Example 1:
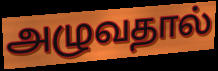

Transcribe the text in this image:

அழுவதால்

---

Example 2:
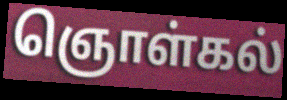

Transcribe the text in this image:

ஞொள்கல்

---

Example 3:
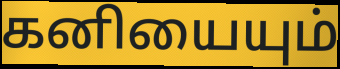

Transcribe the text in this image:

கனியையும்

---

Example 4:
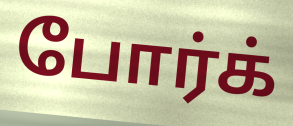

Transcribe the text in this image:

போர்க்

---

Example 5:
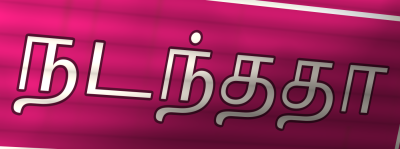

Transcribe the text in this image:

நடந்ததா